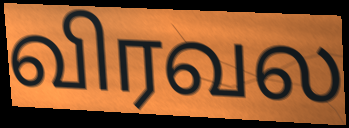
விரவல